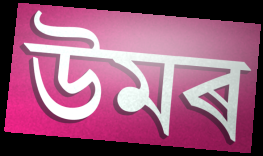
উমৰ